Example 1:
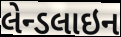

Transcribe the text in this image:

લેન્ડલાઇન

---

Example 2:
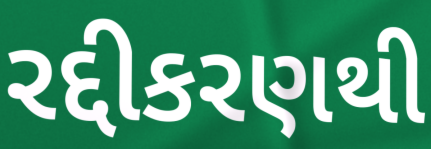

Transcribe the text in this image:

રદ્દીકરણથી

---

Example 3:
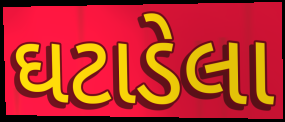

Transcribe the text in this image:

ઘટાડેલા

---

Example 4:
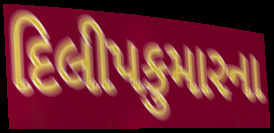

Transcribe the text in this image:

દિલીપકુમારના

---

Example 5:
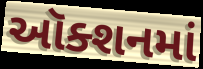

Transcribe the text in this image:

ઑક્શનમાં